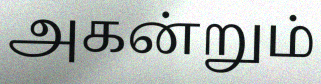
அகன்றும்